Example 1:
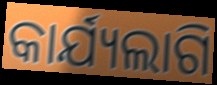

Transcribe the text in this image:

କାର୍ଯ୍ୟଲାଗି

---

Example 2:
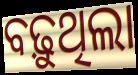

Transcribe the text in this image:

ବଢ଼ୁଥିଲା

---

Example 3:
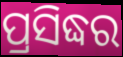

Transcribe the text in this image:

ପ୍ରସିଦ୍ଧର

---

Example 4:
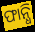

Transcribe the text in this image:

ଫାନ୍ଧି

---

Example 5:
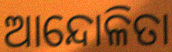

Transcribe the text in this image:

ଆନ୍ଦୋଳିତା